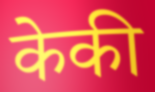
केकी